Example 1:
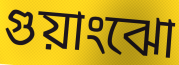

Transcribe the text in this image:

গুয়াংঝো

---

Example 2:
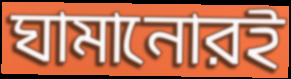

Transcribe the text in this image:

ঘামানোরই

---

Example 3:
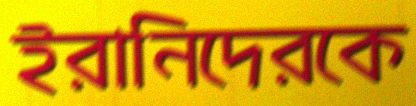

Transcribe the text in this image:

ইরানিদেরকে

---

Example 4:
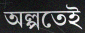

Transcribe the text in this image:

অল্পতেই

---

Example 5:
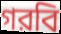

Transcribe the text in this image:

গরবি